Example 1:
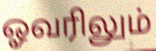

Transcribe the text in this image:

ஓவரிலும்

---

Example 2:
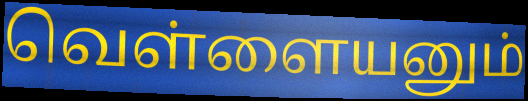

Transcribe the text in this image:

வெள்ளையனும்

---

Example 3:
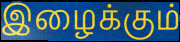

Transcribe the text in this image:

இழைக்கும்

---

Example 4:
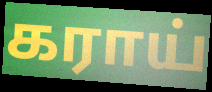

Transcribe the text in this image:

கராய்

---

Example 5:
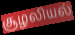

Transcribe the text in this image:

சூழலியல்